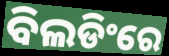
ବିଲଡିଂରେ